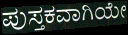
ಪುಸ್ತಕವಾಗಿಯೇ